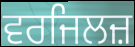
ਵਰਜਿਲਜ਼